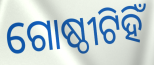
ଗୋଷ୍ଠୀଟିହିଁ